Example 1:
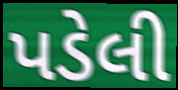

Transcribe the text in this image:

પડેલી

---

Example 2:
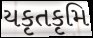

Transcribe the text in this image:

યકૃતકૃમિ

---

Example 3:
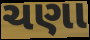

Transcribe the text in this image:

ચણા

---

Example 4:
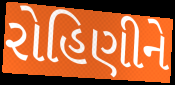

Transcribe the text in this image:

રોહિણીને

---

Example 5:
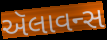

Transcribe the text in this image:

ઍલાવન્સ